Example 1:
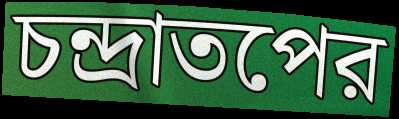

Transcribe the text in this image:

চন্দ্রাতপের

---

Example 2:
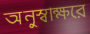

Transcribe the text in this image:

অনুস্বাক্ষরে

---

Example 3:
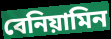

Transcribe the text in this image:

বেনিয়ামিন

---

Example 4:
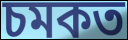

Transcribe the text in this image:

চমকত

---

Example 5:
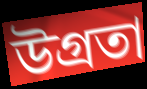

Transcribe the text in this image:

উগ্রতা